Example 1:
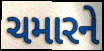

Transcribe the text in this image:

ચમારને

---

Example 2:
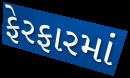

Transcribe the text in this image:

ફેરફારમાં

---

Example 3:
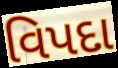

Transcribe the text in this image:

વિપદા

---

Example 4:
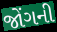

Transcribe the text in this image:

જોંગની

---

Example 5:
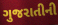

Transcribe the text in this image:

ગુજરાતીની